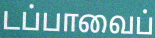
டப்பாவைப்